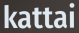
kattai